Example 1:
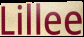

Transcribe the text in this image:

Lillee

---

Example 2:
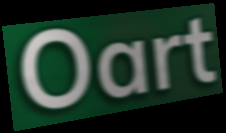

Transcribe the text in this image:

Oart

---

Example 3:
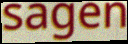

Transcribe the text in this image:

sagen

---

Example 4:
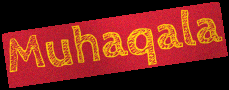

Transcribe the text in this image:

Muhaqala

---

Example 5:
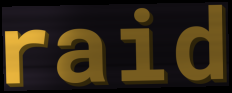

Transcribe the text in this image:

raid